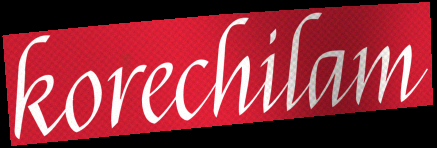
korechilam